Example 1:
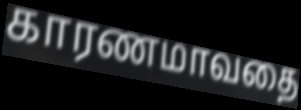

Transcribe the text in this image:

காரணமாவதை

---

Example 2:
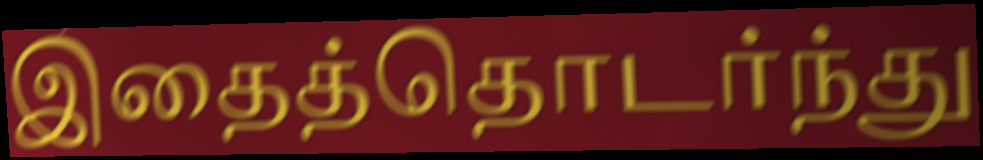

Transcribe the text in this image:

இதைத்தொடர்ந்து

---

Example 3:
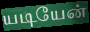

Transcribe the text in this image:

யடியேன்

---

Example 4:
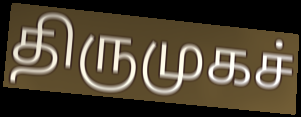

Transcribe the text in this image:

திருமுகச்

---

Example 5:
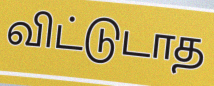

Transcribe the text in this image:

விட்டுடாத